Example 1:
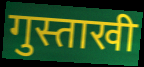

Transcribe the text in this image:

गुस्ताखी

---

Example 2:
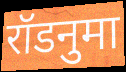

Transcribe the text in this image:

रॉडनुमा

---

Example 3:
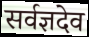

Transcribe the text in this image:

सर्वज्ञदेव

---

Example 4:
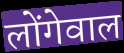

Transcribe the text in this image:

लोंगेवाल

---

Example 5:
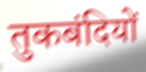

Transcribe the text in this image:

तुकबंदियों